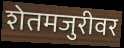
शेतमजुरीवर